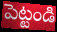
పెట్టండి